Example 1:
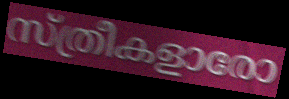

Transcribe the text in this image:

സ്ത്രീകളാരോ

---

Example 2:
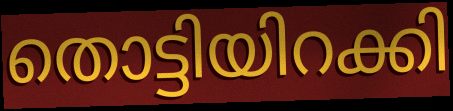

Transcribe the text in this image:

തൊട്ടിയിറക്കി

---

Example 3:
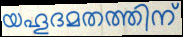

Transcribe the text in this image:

യഹൂദമതത്തിന്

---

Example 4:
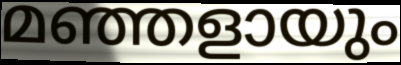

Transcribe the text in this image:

മഞ്ഞളായും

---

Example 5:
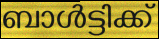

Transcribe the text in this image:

ബാൾട്ടിക്ക്